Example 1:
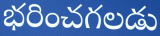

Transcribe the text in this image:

భరించగలడు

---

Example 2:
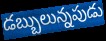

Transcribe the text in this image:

డబ్బులున్నపుడు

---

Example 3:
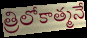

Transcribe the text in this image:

త్రిలోకాత్మనే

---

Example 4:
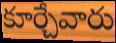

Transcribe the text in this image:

కూర్చేవారు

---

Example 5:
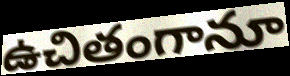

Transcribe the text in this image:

ఉచితంగానూ